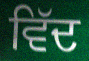
ਵਿੱਦ